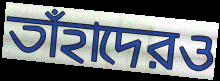
তাঁহাদেরও